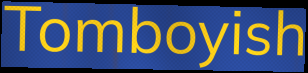
Tomboyish